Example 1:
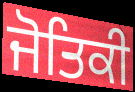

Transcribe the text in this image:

ਜੋਤਿਕੀ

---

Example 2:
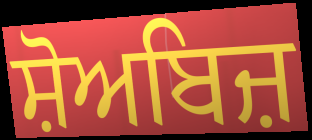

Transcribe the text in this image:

ਸ਼ੋਅਬਿਜ਼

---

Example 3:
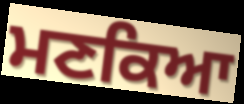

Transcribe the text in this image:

ਮਣਕਿਆ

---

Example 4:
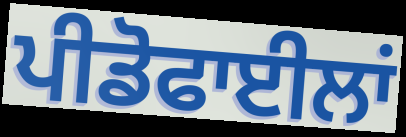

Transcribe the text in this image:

ਪੀਡੋਫਾਈਲਾਂ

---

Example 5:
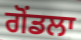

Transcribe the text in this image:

ਗੋਂਡਲਾ